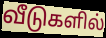
வீடுகளில்